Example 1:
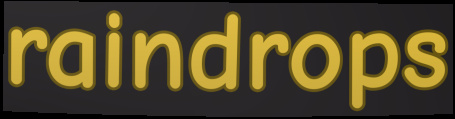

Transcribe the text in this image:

raindrops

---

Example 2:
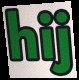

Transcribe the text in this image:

hij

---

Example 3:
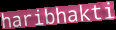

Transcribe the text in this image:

haribhakti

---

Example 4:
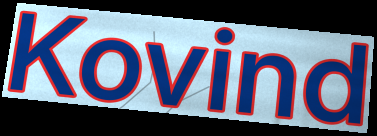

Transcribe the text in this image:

Kovind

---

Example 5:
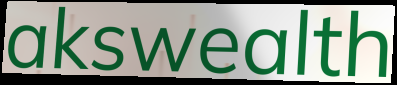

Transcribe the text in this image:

akswealth